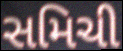
સમિચી